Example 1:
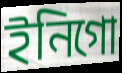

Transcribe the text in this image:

ইনিগো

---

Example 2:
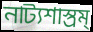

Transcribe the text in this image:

নাট্যশাস্ত্রম্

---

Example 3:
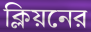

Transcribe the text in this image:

ক্লিয়নের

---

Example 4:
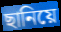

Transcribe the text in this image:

ছানিয়ে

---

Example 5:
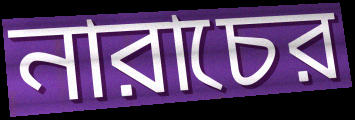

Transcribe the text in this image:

নারাচের